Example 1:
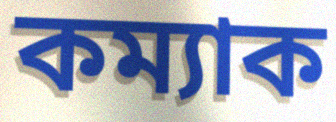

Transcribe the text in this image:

কম্যাক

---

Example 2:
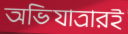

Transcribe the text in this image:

অভিযাত্রারই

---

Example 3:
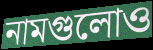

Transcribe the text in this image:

নামগুলোও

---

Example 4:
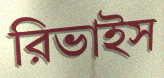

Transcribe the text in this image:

রিভাইস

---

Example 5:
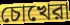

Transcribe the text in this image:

চোখেরা